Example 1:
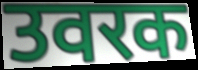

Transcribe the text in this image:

उवरक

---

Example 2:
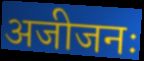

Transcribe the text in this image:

अजीजनः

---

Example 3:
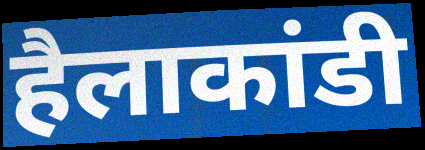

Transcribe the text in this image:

हैलाकांडी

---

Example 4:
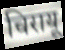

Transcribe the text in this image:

चिरायू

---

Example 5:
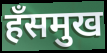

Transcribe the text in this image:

हँसमुख